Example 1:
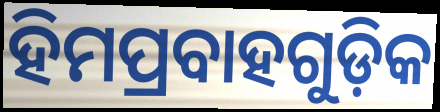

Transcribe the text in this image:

ହିମପ୍ରବାହଗୁଡ଼ିକ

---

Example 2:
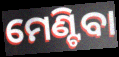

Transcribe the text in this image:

ମେଣ୍ଟିବା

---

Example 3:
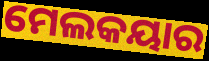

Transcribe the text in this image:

ମେଲକୟାର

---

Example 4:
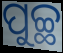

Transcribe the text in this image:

ପୁଚ୍ଛ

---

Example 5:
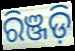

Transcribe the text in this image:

ରିଞ୍ଜଡ଼ି